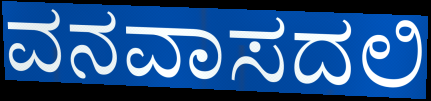
ವನವಾಸದಲಿ